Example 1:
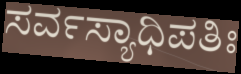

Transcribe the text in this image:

ಸರ್ವಸ್ಯಾಧಿಪತಿಃ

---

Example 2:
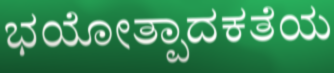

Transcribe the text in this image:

ಭಯೋತ್ಪಾದಕತೆಯ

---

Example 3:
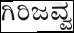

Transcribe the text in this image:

ಗಿರಿಜವ್ವ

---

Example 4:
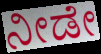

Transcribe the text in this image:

ನೀಡೇ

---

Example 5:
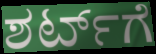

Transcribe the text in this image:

ಶರ್ಟ್‌ಗೆ